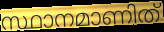
സ്ഥാനമാണിത്